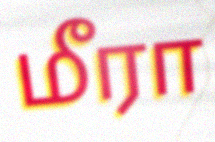
மீரா